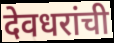
देवधरांची